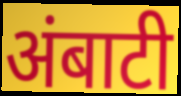
अंबाटी